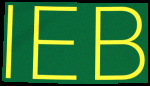
IEB